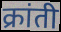
क्रांती